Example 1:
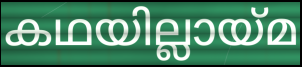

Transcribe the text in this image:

കഥയില്ലായ്മ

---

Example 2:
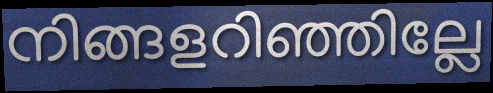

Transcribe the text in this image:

നിങ്ങളറിഞ്ഞില്ലേ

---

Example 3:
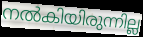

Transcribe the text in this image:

നൽകിയിരുന്നില്ല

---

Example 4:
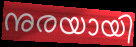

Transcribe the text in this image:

നുരയായി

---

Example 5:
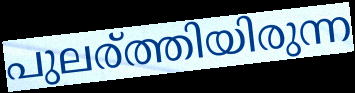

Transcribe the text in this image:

പുലര്ത്തിയിരുന്ന